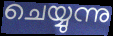
ചെയ്യുന്നു